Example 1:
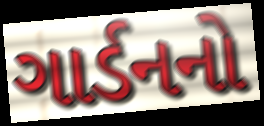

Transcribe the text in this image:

ગાર્ડનનો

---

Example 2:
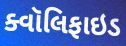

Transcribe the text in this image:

ક્વૉલિફાઇડ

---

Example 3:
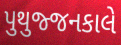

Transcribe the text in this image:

પુથુજ્જનકાલે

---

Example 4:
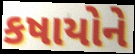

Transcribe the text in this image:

કષાયોને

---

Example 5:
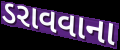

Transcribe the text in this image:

ડરાવવાના